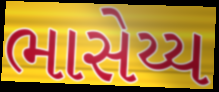
ભાસેય્ય